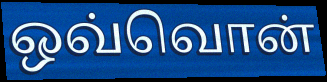
ஒவ்வொன்